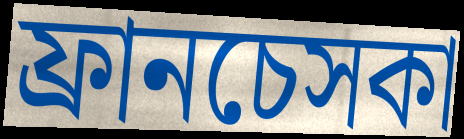
ফ্রানচেসকা